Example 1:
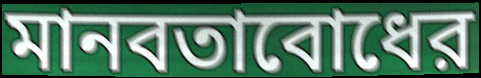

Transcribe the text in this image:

মানবতাবোধের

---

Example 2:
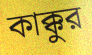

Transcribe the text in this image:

কাক্কুর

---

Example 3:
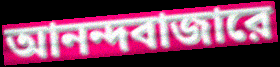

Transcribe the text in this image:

আনন্দবাজারে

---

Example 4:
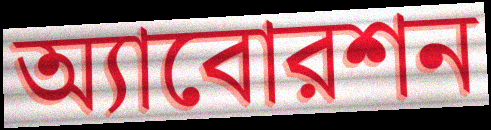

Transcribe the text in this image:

অ্যাবোরশন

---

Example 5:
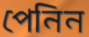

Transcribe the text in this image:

পেনিন